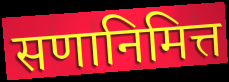
सणानिमित्त